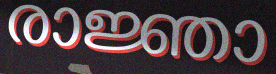
രാജ്ഞാ